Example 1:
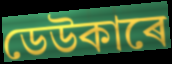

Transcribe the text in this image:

ডেউকাৰে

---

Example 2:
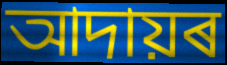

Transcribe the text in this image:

আদায়ৰ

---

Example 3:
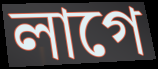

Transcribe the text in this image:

লাগে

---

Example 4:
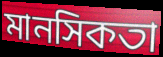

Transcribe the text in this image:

মানসিকতা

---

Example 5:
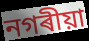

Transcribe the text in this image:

নগৰীয়া